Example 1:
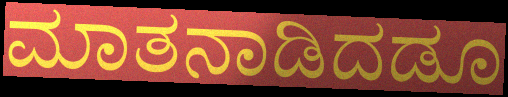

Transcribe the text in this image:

ಮಾತನಾಡಿದಡೂ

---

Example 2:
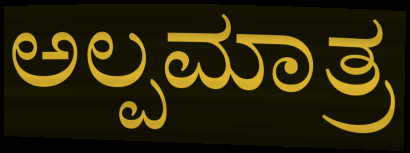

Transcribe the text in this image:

ಅಲ್ಪಮಾತ್ರ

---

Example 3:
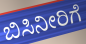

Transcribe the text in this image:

ಬಿಸಿನೀರಿಗೆ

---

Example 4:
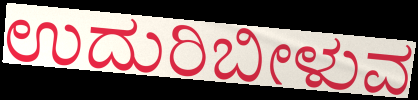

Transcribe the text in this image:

ಉದುರಿಬೀಳುವ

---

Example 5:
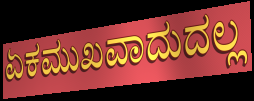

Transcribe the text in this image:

ಏಕಮುಖವಾದುದಲ್ಲ